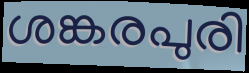
ശങ്കരപുരി